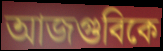
আজগুবিকে